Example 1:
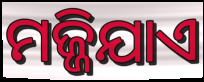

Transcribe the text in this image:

ମଜ୍ଜିଯାଏ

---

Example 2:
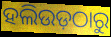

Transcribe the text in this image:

ହଲିଉଡ଼ଠାରୁ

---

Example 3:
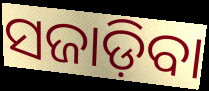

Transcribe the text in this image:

ସଜାଡ଼ିବା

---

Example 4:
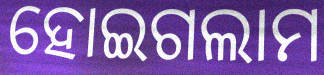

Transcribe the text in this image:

ହୋଇଗଲାମ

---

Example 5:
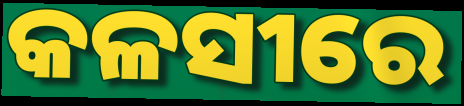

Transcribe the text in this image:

କଳସୀରେ